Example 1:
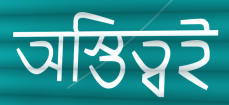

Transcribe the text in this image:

অস্তিত্বই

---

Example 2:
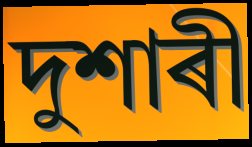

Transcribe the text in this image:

দুশাৰী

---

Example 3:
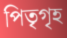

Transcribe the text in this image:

পিতৃগৃহ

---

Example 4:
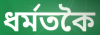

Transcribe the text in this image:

ধৰ্মতকৈ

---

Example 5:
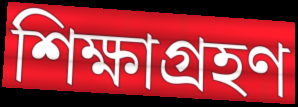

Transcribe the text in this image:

শিক্ষাগ্ৰহণ